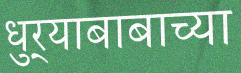
धुर्याबाबाच्या